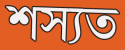
শস্যত